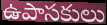
ఉపాసకులు